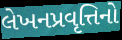
લેખનપ્રવૃત્તિનો